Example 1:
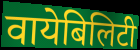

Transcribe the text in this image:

वायेबिलिटी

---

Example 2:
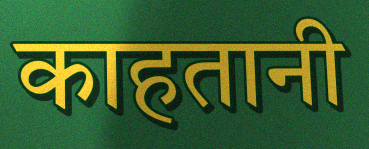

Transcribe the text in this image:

काहतानी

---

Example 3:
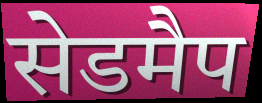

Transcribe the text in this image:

सेडमैप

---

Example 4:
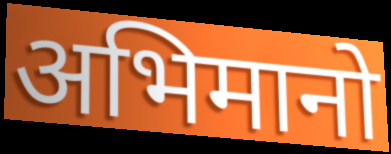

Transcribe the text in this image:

अभिमानो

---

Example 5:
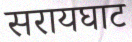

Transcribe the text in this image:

सरायघाट